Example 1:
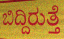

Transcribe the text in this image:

ಬಿದ್ದಿರುತ್ತೆ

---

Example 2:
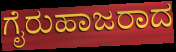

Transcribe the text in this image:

ಗೈರುಹಾಜರಾದ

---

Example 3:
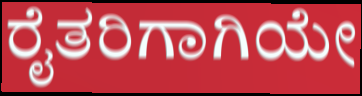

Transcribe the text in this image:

ರೈತರಿಗಾಗಿಯೇ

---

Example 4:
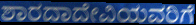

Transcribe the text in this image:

ಶಾರದಾದೇವಿಯವರಿಗೆ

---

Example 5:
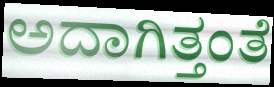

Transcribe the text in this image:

ಅದಾಗಿತ್ತಂತೆ